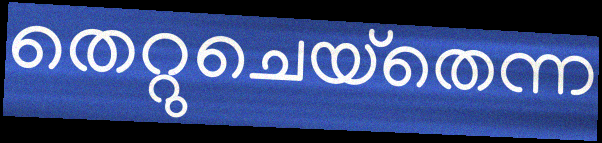
തെറ്റുചെയ്‌തെന്ന